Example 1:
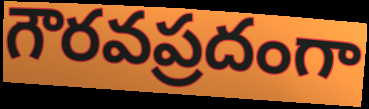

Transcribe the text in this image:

గౌరవప్రదంగా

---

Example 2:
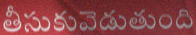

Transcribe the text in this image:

తీసుకువెడుతుంది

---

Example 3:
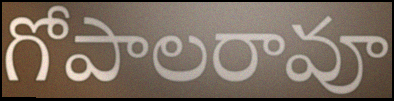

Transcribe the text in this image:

గోపాలరావూ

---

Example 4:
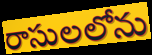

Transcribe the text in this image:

రాసులలోను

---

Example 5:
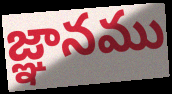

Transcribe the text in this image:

జ్ఞానము